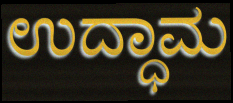
ಉದ್ಧಾಮ